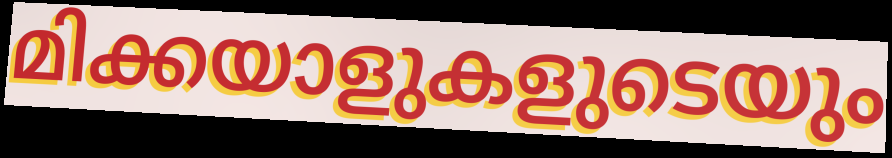
മിക്കയാളുകളുടെയും